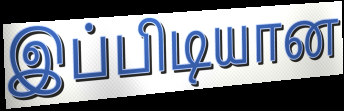
இப்பிடியான